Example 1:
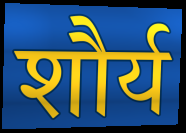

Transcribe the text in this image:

शौर्य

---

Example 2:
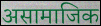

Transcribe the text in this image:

असामाजिक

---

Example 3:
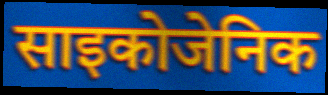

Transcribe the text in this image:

साइकोजेनिक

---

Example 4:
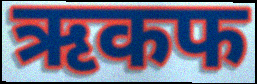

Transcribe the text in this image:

ऋकफ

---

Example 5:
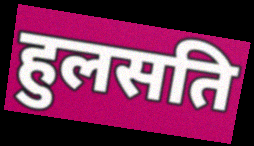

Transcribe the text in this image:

हुलसति